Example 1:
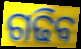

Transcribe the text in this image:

ଗଢିବ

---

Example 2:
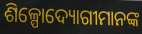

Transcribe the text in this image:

ଶିଳ୍ପୋଦ୍ୟୋଗୀମାନଙ୍କ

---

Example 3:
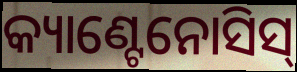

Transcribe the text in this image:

କ୍ୟାଣ୍ଟେନୋସିସ୍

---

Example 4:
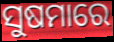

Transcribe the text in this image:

ସୁଷମାରେ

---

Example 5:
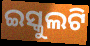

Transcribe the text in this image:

ଇସ୍କୁଲଟି